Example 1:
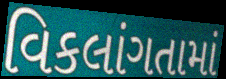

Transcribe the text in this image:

વિકલાંગતામાં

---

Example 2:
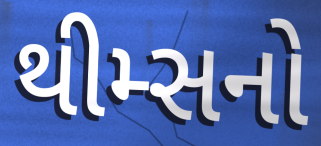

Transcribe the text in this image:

થીમ્સનો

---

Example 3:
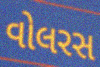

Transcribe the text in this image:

વોલરસ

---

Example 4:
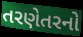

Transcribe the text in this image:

તરણેતરનો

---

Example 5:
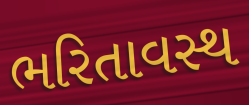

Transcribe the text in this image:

ભરિતાવસ્થ